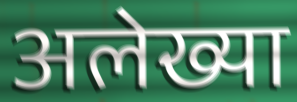
अलेख्या